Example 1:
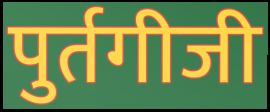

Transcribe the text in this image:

पुर्तगीजी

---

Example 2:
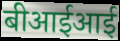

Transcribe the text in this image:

बीआईआई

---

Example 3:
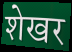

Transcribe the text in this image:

शेखर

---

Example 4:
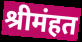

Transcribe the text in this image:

श्रीमंहत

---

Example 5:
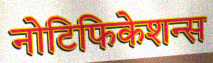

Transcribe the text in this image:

नोटिफिकेशन्स